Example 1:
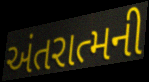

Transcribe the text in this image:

અંતરાત્મની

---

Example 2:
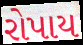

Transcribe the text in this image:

રોપાય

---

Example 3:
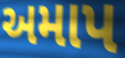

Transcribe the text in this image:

અમાપ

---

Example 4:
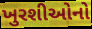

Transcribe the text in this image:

ખુરશીઓનો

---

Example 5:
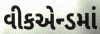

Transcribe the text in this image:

વીકએન્ડમાં